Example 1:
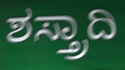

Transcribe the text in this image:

ಶಸ್ತ್ರಾದಿ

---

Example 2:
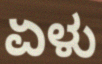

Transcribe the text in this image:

ಏಳು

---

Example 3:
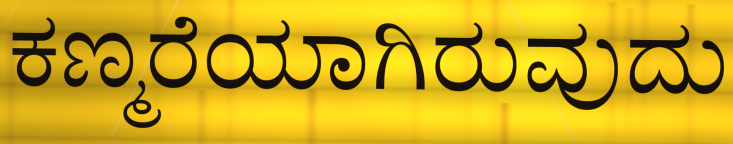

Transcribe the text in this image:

ಕಣ್ಮರೆಯಾಗಿರುವುದು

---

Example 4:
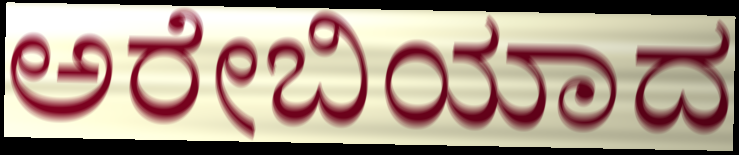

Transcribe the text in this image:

ಅರೇಬಿಯಾದ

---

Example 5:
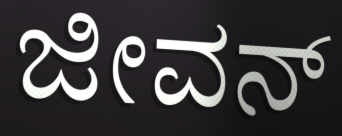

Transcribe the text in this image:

ಜೀವನ್